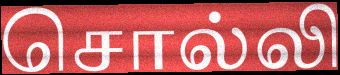
சொல்லி